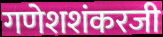
गणेशशंकरजी